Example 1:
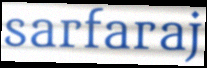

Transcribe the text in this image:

sarfaraj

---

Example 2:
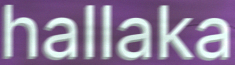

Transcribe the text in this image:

hallaka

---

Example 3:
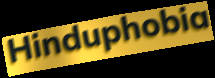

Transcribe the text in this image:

Hinduphobia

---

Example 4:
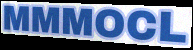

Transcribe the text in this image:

MMMOCL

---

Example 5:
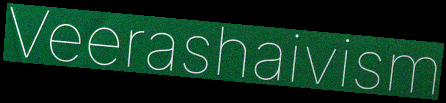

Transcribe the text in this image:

Veerashaivism